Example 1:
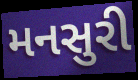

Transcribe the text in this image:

મનસુરી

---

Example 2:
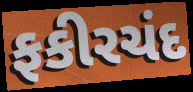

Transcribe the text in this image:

ફકીરચંદ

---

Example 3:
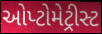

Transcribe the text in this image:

ઓપ્ટોમેટ્રીસ્ટ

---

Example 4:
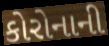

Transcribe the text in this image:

કોરોનાની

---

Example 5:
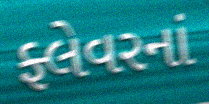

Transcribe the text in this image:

ફ્લેવરનાં